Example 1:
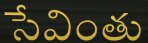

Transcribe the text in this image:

సేవింతు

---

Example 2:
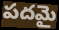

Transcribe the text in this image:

పదమై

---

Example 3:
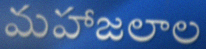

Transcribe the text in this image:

మహాజలాల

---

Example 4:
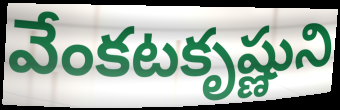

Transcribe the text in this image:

వేంకటకృష్ణుని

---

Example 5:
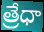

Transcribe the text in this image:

త్రేధా